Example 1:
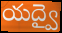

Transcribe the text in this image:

యద్వై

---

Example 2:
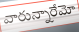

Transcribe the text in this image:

వారున్నారేమో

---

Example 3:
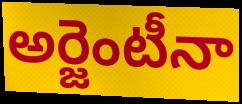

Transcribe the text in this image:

అర్జెంటీనా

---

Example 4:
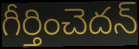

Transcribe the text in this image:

గీర్తించెదన్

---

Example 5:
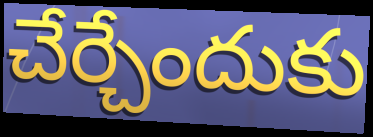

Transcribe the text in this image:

చేర్చేందుకు